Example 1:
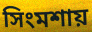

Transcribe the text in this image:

সিংমশায়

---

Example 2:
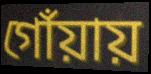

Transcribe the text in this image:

গোঁয়ায়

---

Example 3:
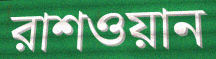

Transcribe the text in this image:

রাশওয়ান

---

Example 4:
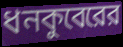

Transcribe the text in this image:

ধনকুবেরের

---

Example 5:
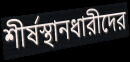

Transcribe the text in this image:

শীর্ষস্থানধারীদের